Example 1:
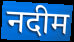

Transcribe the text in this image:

नदीम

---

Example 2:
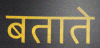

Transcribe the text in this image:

बताते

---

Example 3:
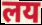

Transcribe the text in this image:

लय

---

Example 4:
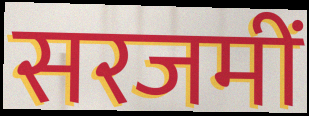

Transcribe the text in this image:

सरजमीं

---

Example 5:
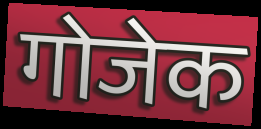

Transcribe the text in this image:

गोजेक